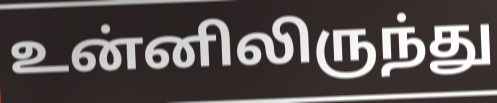
உன்னிலிருந்து